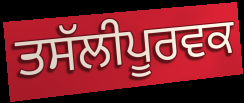
ਤਸੱਲੀਪੂਰਵਕ